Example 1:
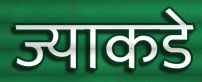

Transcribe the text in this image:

ज्याकडे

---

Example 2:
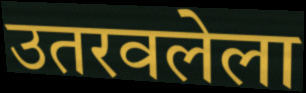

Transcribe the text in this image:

उतरवलेला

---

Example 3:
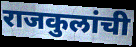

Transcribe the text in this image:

राजकुलांची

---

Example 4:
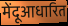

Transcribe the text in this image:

मेंदूआधारित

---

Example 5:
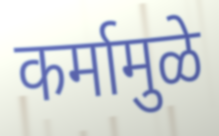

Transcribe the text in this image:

कर्मामुळे